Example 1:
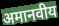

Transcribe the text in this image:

अमानवीय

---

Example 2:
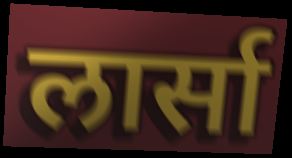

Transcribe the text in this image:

लार्सा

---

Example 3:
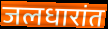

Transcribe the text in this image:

जलधारांत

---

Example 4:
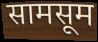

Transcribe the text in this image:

सामसूम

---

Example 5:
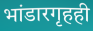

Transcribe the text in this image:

भांडारगृहही